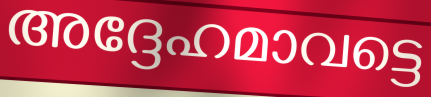
അദ്ദേഹമാവട്ടെ